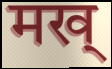
मख्